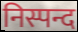
निस्पन्द